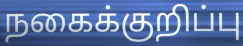
நகைக்குறிப்பு